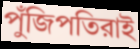
পুঁজিপতিরাই